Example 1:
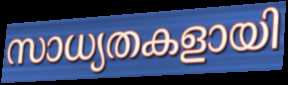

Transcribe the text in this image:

സാധ്യതകളായി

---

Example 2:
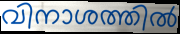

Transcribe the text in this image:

വിനാശത്തിൽ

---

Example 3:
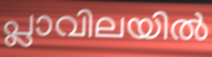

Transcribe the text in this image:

പ്ലാവിലയിൽ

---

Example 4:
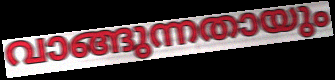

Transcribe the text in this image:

വാങ്ങുന്നതായും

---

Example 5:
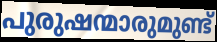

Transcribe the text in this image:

പുരുഷന്മാരുമുണ്ട്